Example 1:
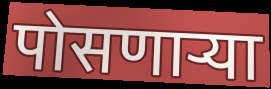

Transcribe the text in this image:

पोसणाऱ्या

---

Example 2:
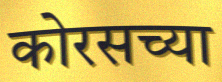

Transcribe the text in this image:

कोरसच्या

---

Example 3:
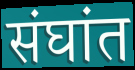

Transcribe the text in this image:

संघांत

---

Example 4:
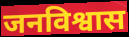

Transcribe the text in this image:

जनविश्वास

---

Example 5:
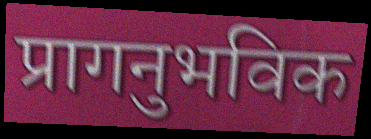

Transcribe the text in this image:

प्रागनुभविक